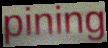
pining